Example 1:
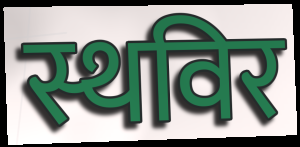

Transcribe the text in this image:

स्थविर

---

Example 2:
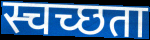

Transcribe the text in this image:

स्चच्छता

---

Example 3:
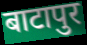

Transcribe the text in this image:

बाटापुर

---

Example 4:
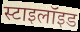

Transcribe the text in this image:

स्टाइलॉइड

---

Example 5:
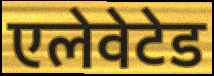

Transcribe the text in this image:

एलेवेटेड